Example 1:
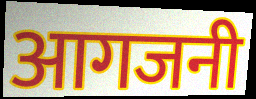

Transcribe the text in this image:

आगजनी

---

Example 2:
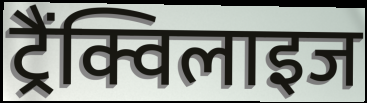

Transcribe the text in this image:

ट्रैंक्विलाइज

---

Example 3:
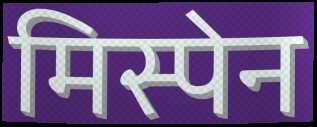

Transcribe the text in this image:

मिस्पेन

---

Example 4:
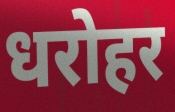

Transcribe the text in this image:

धरोहर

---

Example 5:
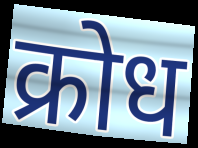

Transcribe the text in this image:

क्रोध